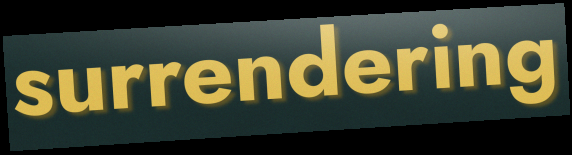
surrendering